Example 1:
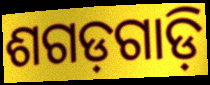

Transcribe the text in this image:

ଶଗଡ଼ଗାଡ଼ି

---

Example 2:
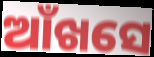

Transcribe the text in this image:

ଆଁଖସେ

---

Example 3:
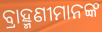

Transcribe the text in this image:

ବ୍ରାହ୍ମଣୀମାନଙ୍କ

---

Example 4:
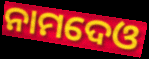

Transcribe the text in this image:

ନାମଦେଓ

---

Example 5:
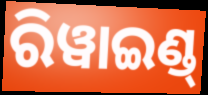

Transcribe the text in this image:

ରିୱାଇଣ୍ଡ୍